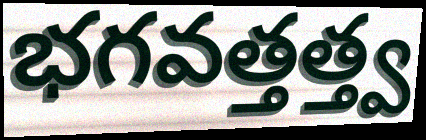
భగవత్తత్త్వ